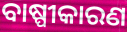
ବାଷ୍ପୀକାରଣ